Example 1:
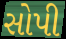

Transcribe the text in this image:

સોપી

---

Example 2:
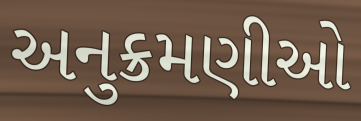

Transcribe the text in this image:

અનુક્રમણીઓ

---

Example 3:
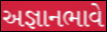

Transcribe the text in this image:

અજ્ઞાનભાવે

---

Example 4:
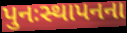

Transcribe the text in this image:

પુનઃસ્થાપનના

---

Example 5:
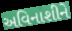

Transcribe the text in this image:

અવિનાશીને